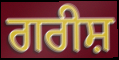
ਗਰੀਸ਼